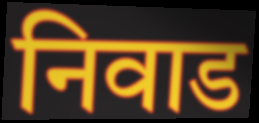
निवाड